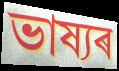
ভাষ্যৰ